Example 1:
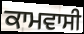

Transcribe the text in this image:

ਕਾਮਵਾਸੀ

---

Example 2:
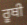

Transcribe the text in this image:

ਰੂਥੀ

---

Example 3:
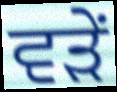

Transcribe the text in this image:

ਵੜੇਂ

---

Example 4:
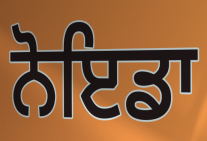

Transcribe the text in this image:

ਨੋਇਡਾ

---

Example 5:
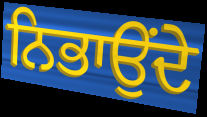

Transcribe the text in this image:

ਨਿਭਾਉਂਦੇ